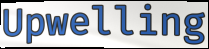
Upwelling